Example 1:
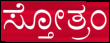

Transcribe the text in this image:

ಸ್ತೋತ್ರಂ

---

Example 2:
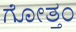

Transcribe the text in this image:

ಗೋತ್ತಂ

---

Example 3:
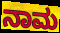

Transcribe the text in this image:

ನಾಮ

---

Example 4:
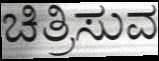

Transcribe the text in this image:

ಚಿತ್ರಿಸುವ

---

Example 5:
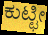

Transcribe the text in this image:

ಕುಟ್ಟೀ